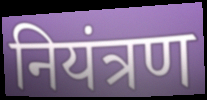
नियंत्रण